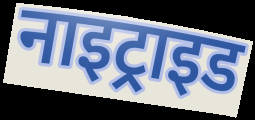
नाइट्राइड